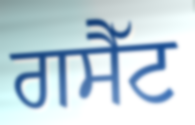
ਗਸੈੱਟ